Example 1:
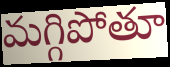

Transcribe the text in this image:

మగ్గిపోతూ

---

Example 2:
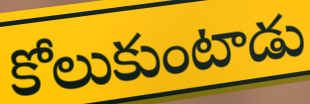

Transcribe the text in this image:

కోలుకుంటాడు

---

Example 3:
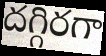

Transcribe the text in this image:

దగ్గిరగా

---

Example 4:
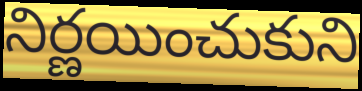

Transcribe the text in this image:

నిర్ణయించుకుని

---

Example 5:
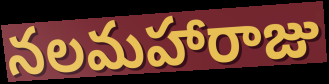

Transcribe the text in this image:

నలమహారాజు